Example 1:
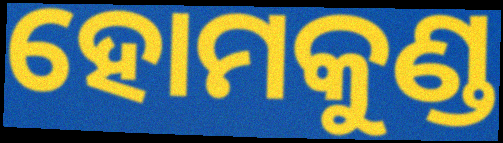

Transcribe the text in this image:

ହୋମକୁଣ୍ଡ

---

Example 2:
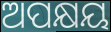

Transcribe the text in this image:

ଅପକ୍ଷୟ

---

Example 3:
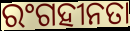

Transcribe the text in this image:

ରଂଗହୀନତା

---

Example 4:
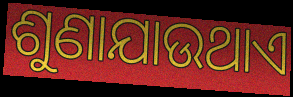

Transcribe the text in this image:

ଶୁଣାଯାଉଥାଏ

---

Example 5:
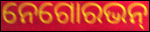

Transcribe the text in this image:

ନେଗୋରଭନ୍